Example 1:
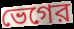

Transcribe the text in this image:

ভেগের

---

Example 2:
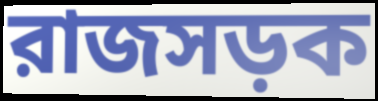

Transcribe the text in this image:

রাজসড়ক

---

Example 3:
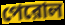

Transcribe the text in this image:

পেরোল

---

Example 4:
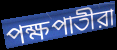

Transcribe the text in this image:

পক্ষপাতীরা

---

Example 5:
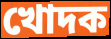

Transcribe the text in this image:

খোদক